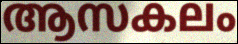
ആസകലം